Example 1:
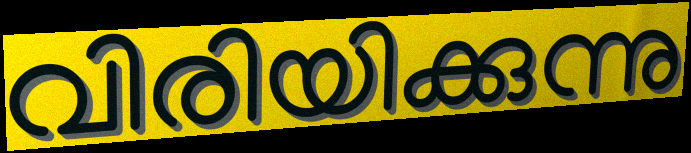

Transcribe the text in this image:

വിരിയിക്കുന്നു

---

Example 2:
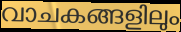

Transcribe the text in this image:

വാചകങ്ങളിലും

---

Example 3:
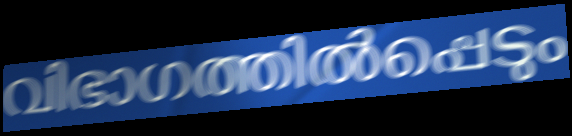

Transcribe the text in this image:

വിഭാഗത്തിൽപ്പെടും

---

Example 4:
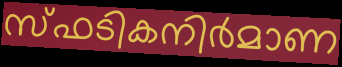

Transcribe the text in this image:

സ്ഫടികനിർമാണ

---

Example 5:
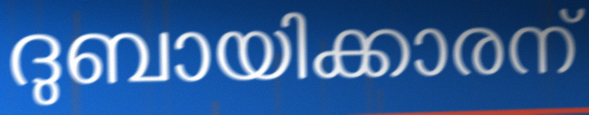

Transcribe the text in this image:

ദുബായിക്കാരന്